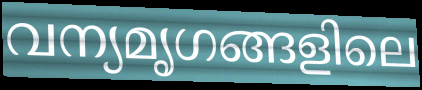
വന്യമൃഗങ്ങളിലെ